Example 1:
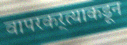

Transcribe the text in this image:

वापरकर्त्याकडून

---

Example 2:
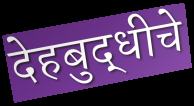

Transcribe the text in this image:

देहबुद्धीचे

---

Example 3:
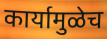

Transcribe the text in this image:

कार्यामुळेच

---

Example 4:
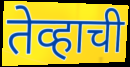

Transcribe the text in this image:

तेव्हाची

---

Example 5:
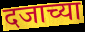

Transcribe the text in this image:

दजाच्या